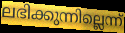
ലഭിക്കുന്നില്ലെന്ന്